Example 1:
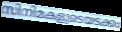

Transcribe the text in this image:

സിനിമകളുടെയടക്കം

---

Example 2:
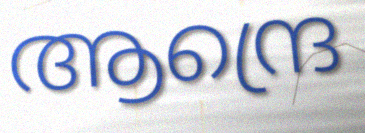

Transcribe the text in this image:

ആന്ദ്രെ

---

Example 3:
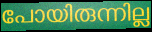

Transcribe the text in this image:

പോയിരുന്നില്ല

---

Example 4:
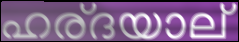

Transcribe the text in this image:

ഹര്ദയാല്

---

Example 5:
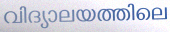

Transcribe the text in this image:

വിദ്യാലയത്തിലെ